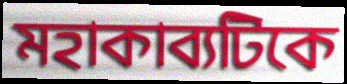
মহাকাব্যটিকে